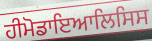
ਹੀਮੋਡਾਇਆਲਿਸਿਸ